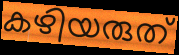
കഴിയരുത്